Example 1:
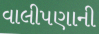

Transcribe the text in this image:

વાલીપણાની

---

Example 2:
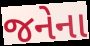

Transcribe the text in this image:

જનેના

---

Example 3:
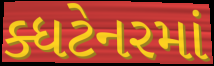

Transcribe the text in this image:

ક્ધટેનરમાં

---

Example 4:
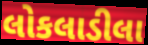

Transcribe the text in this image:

લોકલાડીલા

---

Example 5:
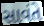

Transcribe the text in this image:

સાવંતે